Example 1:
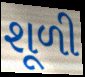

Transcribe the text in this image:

શૂળી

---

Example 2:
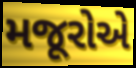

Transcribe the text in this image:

મજૂરોએ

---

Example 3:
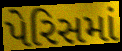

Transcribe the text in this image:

પેરિસમાં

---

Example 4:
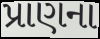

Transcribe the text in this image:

પ્રાણના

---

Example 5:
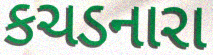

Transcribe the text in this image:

કચડનારા